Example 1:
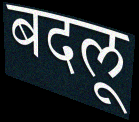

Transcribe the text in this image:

बदलू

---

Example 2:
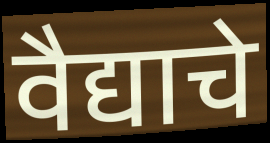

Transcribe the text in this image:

वैद्याचे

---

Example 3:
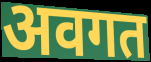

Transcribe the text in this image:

अवगत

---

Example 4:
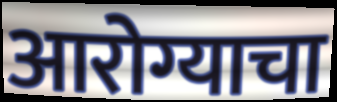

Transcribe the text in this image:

आरोग्याचा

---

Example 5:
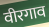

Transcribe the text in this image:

वीरगाव